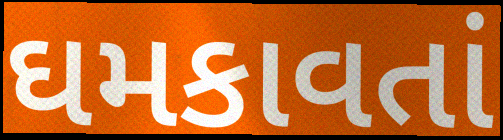
ઘમકાવતાં